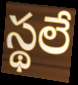
స్థలే